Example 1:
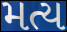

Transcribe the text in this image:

મત્ય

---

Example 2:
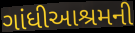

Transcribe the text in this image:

ગાંધીઆશ્રમની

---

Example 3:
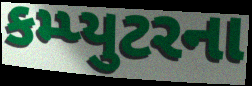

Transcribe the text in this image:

કમ્પ્યુટરના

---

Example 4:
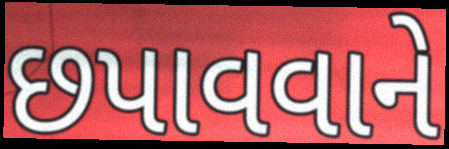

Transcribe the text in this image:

છપાવવાને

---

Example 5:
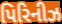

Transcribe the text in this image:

પિરિનીઝ